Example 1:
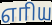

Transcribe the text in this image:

எரிய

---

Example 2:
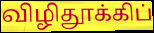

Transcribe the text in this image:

விழிதூக்கிப்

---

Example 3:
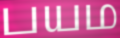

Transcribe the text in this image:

பயம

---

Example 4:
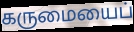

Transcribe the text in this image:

கருமையைப்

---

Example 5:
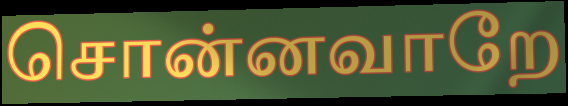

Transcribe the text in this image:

சொன்னவாறே